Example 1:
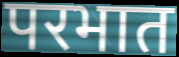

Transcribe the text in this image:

परभात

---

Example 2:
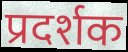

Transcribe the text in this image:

प्रदर्शक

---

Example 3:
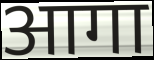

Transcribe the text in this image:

आगा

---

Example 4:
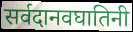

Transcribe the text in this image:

सर्वदानवघातिनी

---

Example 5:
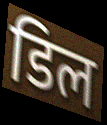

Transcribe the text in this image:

डिल